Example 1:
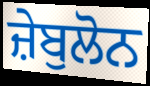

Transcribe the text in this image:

ਜ਼ੇਬੁਲੋਨ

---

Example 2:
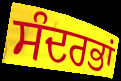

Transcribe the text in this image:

ਸੰਦਰਭਾਂ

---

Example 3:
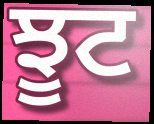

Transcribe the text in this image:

ਝੂਟ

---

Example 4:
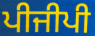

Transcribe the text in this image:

ਪੀਜੀਪੀ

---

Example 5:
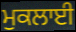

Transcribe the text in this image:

ਮੁਕਲਾਈ